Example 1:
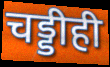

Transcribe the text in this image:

चड्डीही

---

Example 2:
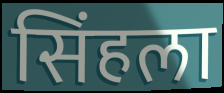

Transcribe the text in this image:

सिंहला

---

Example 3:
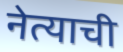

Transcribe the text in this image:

नेत्याची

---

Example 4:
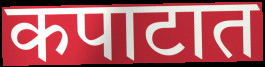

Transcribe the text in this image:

कपाटात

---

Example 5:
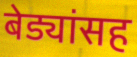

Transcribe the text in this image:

बेड्यांसह